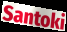
Santoki